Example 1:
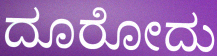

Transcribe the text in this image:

ದೂರೋದು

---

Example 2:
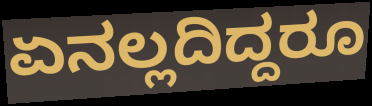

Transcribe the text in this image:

ಏನಲ್ಲದಿದ್ದರೂ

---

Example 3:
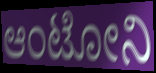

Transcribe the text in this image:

ಆಂಟೋನಿ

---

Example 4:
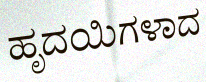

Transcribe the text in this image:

ಹೃದಯಿಗಳಾದ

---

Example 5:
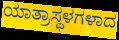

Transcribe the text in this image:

ಯಾತ್ರಾಸ್ಥಳಗಳಾದ